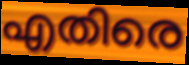
എതിരെ